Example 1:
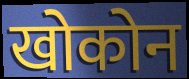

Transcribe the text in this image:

खोकोन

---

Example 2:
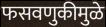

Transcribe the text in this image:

फसवणुकीमुळे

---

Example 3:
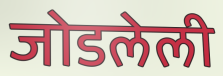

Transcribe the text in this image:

जोडलेली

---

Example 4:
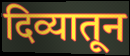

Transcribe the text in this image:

दिव्यातून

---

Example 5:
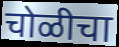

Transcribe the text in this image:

चोळीचा